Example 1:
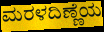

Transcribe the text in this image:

ಮರಳದಿಣ್ಣೆಯ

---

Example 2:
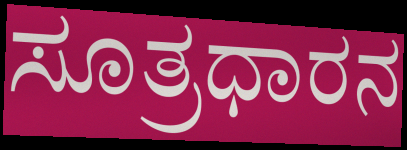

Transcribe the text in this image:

ಸೂತ್ರಧಾರನ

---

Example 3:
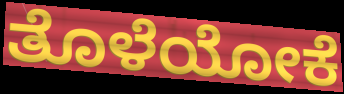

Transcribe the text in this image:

ತೊಳೆಯೋಕೆ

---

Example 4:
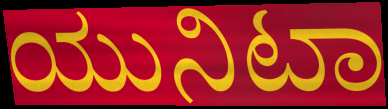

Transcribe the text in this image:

ಯುನಿಟಾ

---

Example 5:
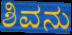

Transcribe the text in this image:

ಶಿವನು